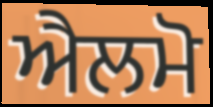
ਐਲਮੋ